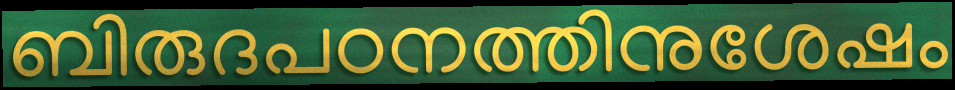
ബിരുദപഠനത്തിനുശേഷം